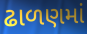
ઢાળણમાં